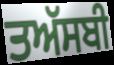
ਤਅੱਸਬੀ